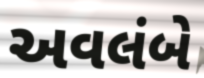
અવલંબે